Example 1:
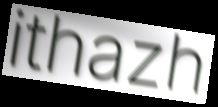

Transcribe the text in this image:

ithazh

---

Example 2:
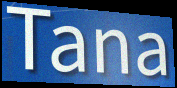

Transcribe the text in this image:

Tana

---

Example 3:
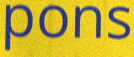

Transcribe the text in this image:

pons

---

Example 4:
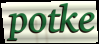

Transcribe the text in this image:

potke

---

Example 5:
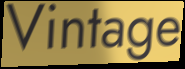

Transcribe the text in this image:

Vintage